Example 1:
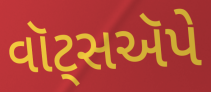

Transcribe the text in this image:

વૉટ્સઍપે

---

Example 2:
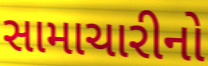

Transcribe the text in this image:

સામાચારીનો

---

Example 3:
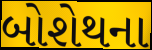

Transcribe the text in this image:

બોશેથના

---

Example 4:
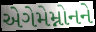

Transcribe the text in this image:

એગેમેમ્નોનને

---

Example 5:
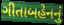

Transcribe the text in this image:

ગીતાબહેનનું